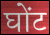
घोंट